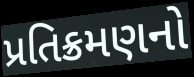
પ્રતિક્રમણનો